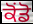
ਕੋਂਡੋ